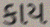
કાય